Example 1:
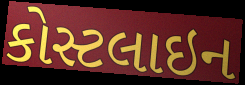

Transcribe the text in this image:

કોસ્ટલાઇન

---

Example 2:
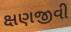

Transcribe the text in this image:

ક્ષણજીવી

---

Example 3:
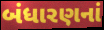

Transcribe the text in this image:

બંધારણનાં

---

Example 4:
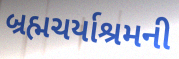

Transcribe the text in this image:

બ્રહ્મચર્યાશ્રમની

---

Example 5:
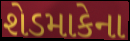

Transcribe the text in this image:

શેડમાકેના